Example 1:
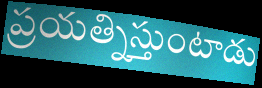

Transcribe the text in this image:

ప్రయత్నిస్తుంటాడు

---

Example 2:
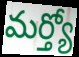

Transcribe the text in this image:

మర్త్యో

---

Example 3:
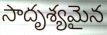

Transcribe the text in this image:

సాదృశ్యమైన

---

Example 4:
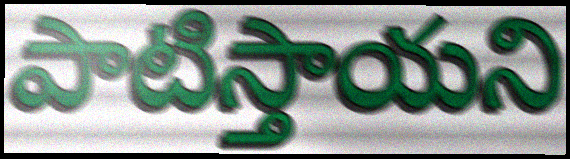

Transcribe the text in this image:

పాటిస్తాయని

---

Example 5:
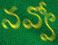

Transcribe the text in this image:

నవ్వో